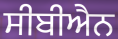
ਸੀਬੀਐਨ